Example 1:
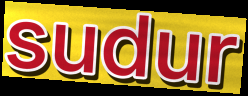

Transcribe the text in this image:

sudur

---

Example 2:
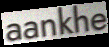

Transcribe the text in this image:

aankhe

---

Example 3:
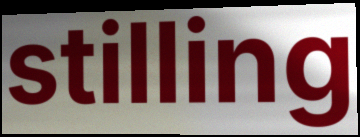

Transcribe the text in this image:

stilling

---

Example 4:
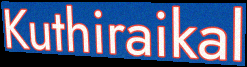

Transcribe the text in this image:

Kuthiraikal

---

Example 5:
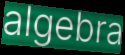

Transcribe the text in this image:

algebra